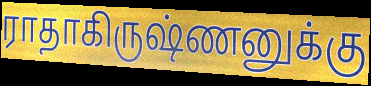
ராதாகிருஷ்ணனுக்கு